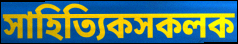
সাহিত্যিকসকলক